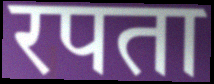
रपता